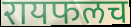
रायफलच